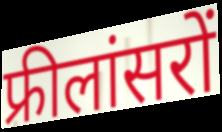
फ्रीलांसरों